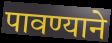
पावण्याने